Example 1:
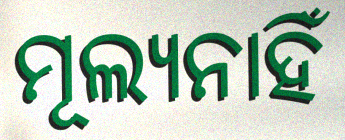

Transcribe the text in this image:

ମୂଲ୍ୟନାହିଁ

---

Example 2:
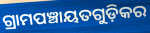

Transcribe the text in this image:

ଗ୍ରାମପଞ୍ଚାୟତଗୁଡ଼ିକର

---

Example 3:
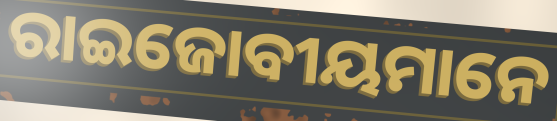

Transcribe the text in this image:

ରାଇଜୋବୀୟମାନେ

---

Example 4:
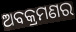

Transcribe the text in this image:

ଅବକ୍ରମଣର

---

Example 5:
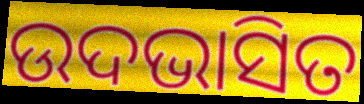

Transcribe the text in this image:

ଉଦଭାସିତ